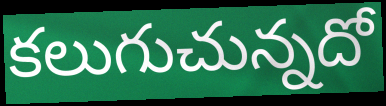
కలుగుచున్నదో